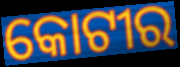
କୋଟୀର